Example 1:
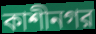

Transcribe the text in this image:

কাশীনগর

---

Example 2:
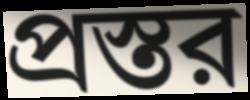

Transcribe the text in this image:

প্রস্তর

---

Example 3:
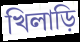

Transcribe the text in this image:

খিলাড়ি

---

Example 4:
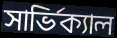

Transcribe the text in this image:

সার্ভিক্যাল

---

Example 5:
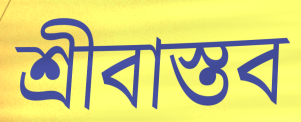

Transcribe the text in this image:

শ্রীবাস্তব